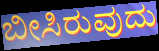
ಬೀಸಿರುವುದು